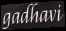
gadhavi